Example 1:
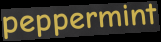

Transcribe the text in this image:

peppermint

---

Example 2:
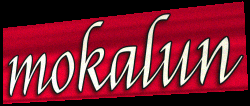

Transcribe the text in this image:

mokalun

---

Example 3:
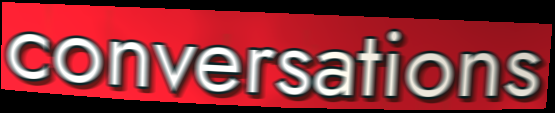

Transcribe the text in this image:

conversations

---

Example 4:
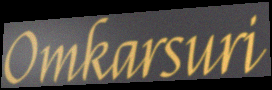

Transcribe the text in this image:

Omkarsuri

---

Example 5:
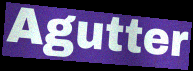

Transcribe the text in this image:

Agutter